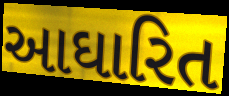
આઘારિત